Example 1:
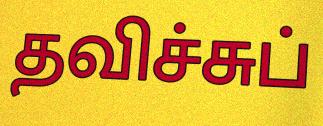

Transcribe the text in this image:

தவிச்சுப்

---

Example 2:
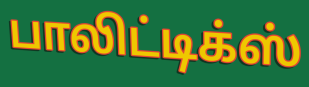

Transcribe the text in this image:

பாலிட்டிக்ஸ்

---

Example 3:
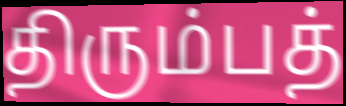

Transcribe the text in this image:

திரும்பத்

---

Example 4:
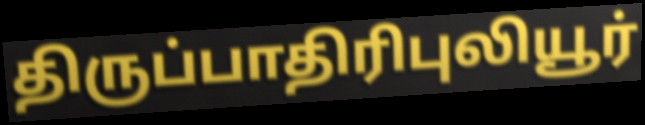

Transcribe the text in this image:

திருப்பாதிரிபுலியூர்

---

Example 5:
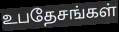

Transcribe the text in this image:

உபதேசங்கள்